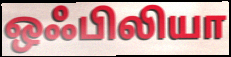
ஒஃபிலியா